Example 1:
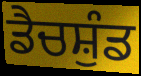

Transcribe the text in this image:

ਡੈਚਸ਼ੁੰਡ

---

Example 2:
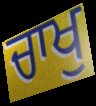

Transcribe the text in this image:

ਚਾਖੁ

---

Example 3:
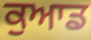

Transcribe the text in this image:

ਕੁਆਡ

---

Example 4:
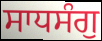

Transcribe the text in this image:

ਸਾਧਸੰਗੁ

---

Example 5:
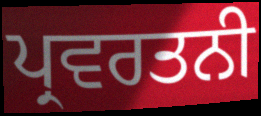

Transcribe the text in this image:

ਪ੍ਰਵਰਤਨੀ